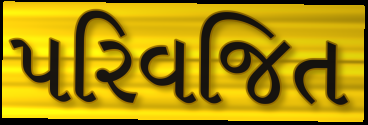
પરિવજિત